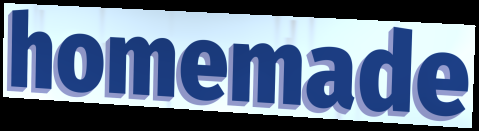
homemade